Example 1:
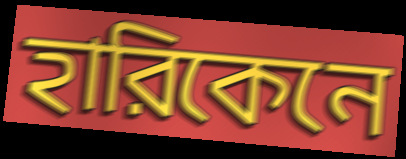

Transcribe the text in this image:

হারিকেনে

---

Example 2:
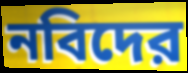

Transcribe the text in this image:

নবিদের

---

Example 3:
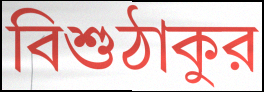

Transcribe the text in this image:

বিশুঠাকুর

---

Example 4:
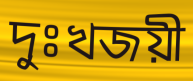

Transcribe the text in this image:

দুঃখজয়ী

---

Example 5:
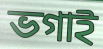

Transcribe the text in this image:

ভগাই